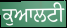
ਕੁਆਲਟੀ